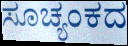
ಸೂಚ್ಯಂಕದ